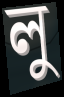
লু